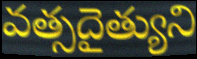
వత్సదైత్యుని